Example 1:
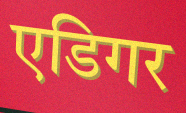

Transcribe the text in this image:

एडिगर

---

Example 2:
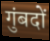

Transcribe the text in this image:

गुंबदों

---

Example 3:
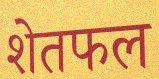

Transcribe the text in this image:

शेतफल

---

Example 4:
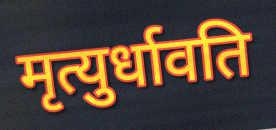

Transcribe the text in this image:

मृत्युर्धावति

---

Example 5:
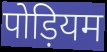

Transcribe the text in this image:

पोड़ियम